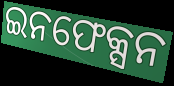
ଇନଫେକ୍ସନ